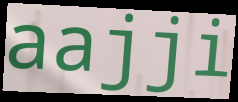
aajji